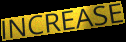
INCREASE